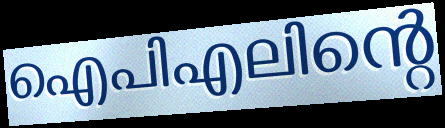
ഐപിഎലിന്റെ